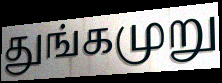
துங்கமுறு